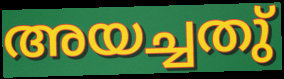
അയച്ചതു്